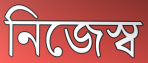
নিজেস্ব